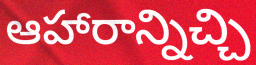
ఆహారాన్నిచ్చి